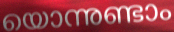
യൊന്നുണ്ടാം